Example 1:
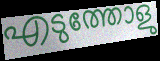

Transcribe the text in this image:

എടുത്തോളു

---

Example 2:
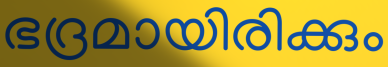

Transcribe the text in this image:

ഭദ്രമായിരിക്കും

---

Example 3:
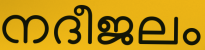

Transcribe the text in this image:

നദീജലം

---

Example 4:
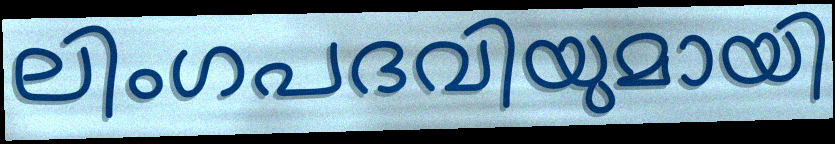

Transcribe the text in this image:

ലിംഗപദവിയുമായി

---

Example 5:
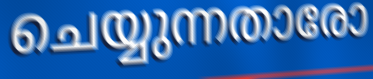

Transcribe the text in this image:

ചെയ്യുന്നതാരോ